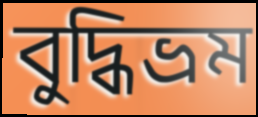
বুদ্ধিভ্রম